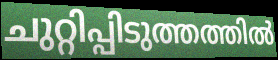
ചുറ്റിപ്പിടുത്തത്തിൽ